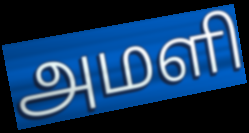
அமளி